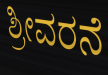
ಶ್ರೀವರನೆ